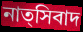
নাত্সিবাদ